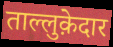
ताल्लुक़ेदार